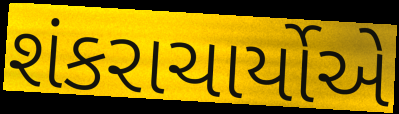
શંકરાચાર્યોએ